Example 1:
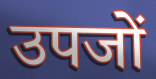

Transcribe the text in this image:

उपजों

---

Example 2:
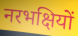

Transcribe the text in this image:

नरभक्षियों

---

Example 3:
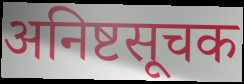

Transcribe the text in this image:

अनिष्टसूचक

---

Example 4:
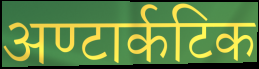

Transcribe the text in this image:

अण्टार्कटिक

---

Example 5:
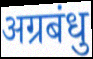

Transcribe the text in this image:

अग्रबंधु